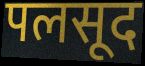
पलसूद